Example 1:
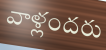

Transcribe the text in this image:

వాళ్లందరు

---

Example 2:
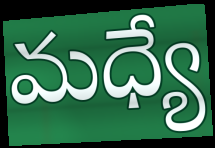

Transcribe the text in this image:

మధ్యే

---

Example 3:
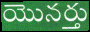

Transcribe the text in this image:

యొనర్తు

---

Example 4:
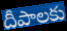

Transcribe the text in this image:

దీపాలకు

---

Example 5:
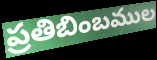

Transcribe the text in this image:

ప్రతిబింబముల